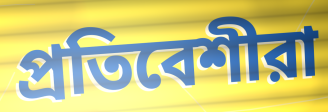
প্রতিবেশীরা